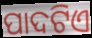
ପାଦଟିଏ